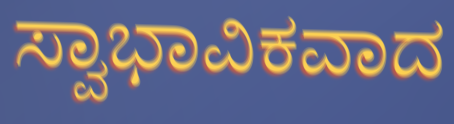
ಸ್ವಾಭಾವಿಕವಾದ